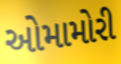
ઓમામોરી